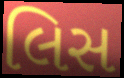
લિસ